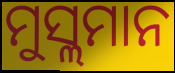
ମୁସ୍ଲମାନ